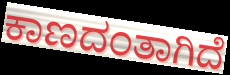
ಕಾಣದಂತಾಗಿದೆ